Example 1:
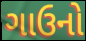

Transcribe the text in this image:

ગાઉનો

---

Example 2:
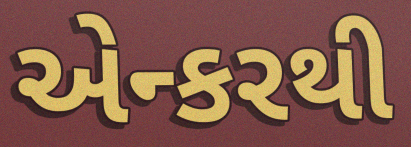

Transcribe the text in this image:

એન્કરથી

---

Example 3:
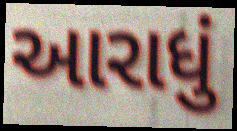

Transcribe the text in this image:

આરાધું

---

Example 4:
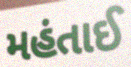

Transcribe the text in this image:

મહંતાઈ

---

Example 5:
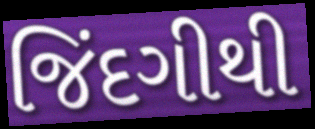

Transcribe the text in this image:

જિંદગીથી